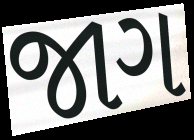
જાગ